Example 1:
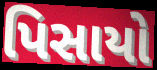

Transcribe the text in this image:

પિસાયો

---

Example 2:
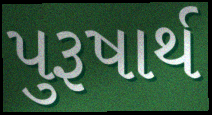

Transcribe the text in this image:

પુરૂષાર્થ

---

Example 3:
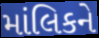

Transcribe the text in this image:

માંલિકને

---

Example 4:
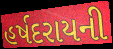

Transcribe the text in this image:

હર્ષદરાયની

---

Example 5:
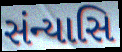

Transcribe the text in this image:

સંન્યાસિ